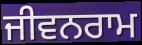
ਜੀਵਨਰਾਮ